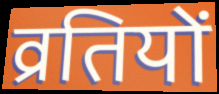
व्रतियों